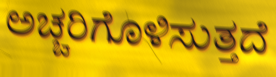
ಅಚ್ಚರಿಗೊಳಿಸುತ್ತದೆ